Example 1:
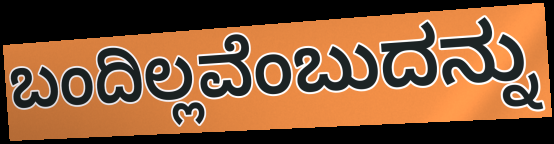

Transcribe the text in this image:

ಬಂದಿಲ್ಲವೆಂಬುದನ್ನು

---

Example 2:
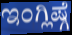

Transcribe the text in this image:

ಇಂಗ್ಲಿಷ್ಗೆ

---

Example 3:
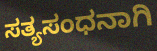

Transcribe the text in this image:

ಸತ್ಯಸಂಧನಾಗಿ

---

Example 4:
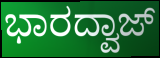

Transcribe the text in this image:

ಭಾರದ್ವಾಜ್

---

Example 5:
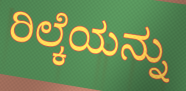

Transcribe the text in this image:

ರಿಲ್ಕೆಯನ್ನು